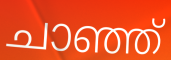
ചാഞ്ഞ്